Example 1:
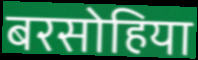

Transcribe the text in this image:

बरसोहिया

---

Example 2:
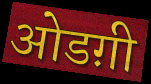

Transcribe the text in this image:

ओडग़ी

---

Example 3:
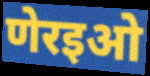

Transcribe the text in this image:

णेरइओ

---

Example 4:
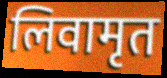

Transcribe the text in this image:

लिवामृत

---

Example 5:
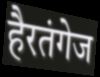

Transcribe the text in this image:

हैरतंगेज